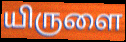
யிருளை